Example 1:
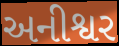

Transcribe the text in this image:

અનીશ્વર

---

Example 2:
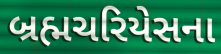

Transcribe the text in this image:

બ્રહ્મચરિયેસના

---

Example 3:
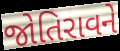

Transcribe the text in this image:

જોતિરાવને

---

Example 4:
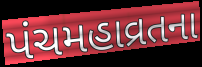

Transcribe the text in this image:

પંચમહાવ્રતના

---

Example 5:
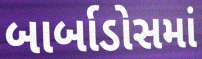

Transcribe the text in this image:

બાર્બાડોસમાં